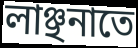
লাঞ্ছনাতে